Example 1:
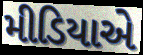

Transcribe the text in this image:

મીડિયાએ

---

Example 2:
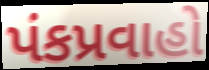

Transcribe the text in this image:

પંકપ્રવાહો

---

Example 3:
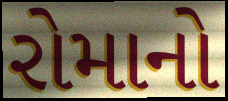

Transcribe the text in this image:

રોમાનો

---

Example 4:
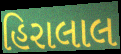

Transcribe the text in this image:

હિરાલાલ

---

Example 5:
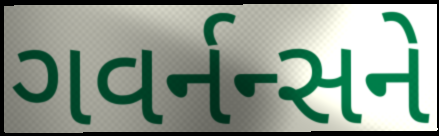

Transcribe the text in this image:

ગવર્નન્સને